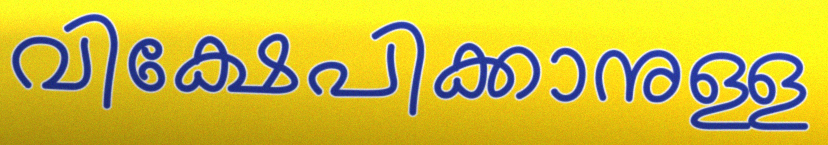
വിക്ഷേപിക്കാനുള്ള